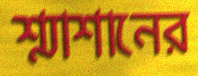
শ্মাশানের